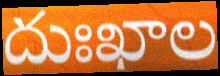
దుఃఖాల